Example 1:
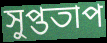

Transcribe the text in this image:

সুপ্ততাপ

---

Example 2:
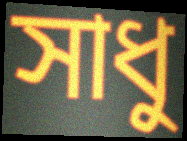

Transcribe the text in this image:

সাধু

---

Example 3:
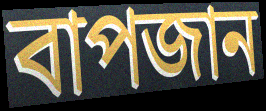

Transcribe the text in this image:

বাপজান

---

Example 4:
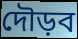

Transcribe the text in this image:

দৌড়ব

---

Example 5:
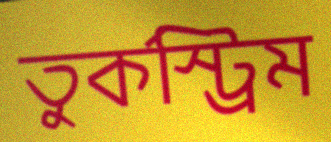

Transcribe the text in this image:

তুর্কস্ট্রিম